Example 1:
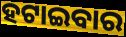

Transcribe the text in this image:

ହଟାଇବାର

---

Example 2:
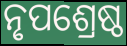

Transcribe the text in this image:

ନୃପଶ୍ରେଷ୍ଠ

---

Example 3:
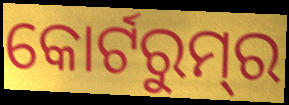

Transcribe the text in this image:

କୋର୍ଟରୁମ୍‌ର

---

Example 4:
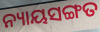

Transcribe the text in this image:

ନ୍ୟାୟସଙ୍ଗତ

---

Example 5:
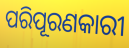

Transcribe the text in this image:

ପରିପୂରଣକାରୀ